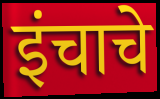
इंचाचे